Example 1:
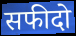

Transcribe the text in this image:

सफीदो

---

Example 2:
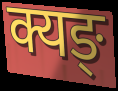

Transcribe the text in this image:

क्यङ्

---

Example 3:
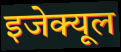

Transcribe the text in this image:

इजेक्यूल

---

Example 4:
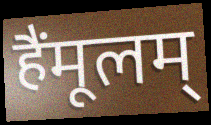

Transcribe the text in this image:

हैंमूलम्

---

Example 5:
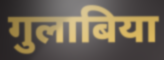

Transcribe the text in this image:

गुलाबिया